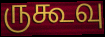
ருகூவு